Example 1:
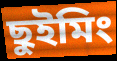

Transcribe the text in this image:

ছুইমিং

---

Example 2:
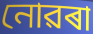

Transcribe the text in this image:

নোৱৰা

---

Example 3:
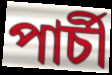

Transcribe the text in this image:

পাৰ্চী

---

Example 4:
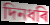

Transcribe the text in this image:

দিনধৰি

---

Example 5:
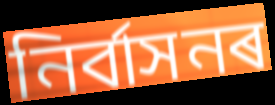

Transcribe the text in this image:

নিৰ্বাসনৰ